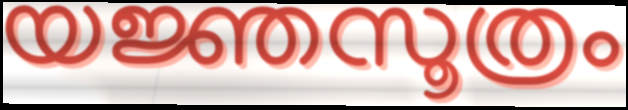
യജ്ഞസൂത്രം